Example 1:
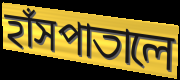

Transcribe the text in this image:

হাঁসপাতালে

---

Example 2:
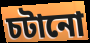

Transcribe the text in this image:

চটানো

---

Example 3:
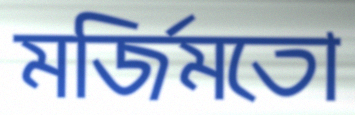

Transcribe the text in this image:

মর্জিমতো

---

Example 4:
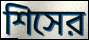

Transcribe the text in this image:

শিসের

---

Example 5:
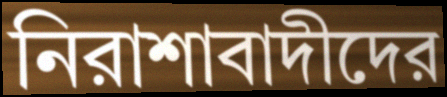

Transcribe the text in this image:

নিরাশাবাদীদের